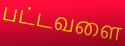
பட்டவளை